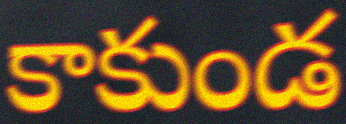
కాకుండ